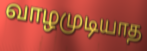
வாழமுடியாத